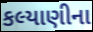
કલ્યાણીના